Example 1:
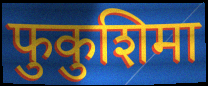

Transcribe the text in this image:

फुकुशिमा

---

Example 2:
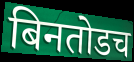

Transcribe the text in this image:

बिनतोडच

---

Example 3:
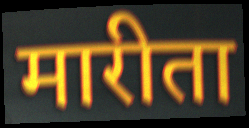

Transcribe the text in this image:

मारीता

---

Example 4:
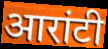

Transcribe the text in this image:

आरांटी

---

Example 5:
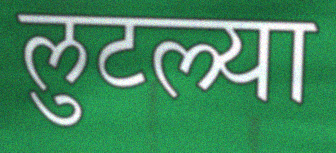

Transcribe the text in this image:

लुटल्या